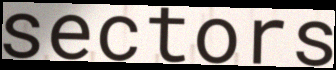
sectors